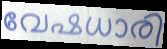
വേഷധാരി